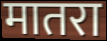
मातरा